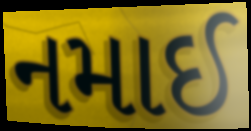
નમાઈ